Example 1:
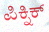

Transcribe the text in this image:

ಪಿಕ್ನಿಕ್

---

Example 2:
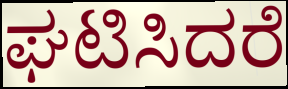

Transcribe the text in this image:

ಘಟಿಸಿದರೆ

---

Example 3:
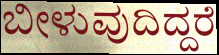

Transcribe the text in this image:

ಬೀಳುವುದಿದ್ದರೆ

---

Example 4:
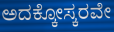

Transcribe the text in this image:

ಅದಕ್ಕೋಸ್ಕರವೇ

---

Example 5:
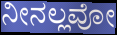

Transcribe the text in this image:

ನೀನಲ್ಲವೋ